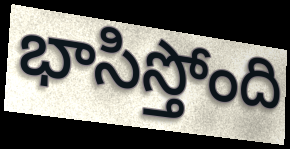
భాసిస్తోంది